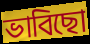
ভাবিছো